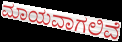
ಮಾಯವಾಗಲಿವೆ